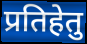
प्रतिहेतु